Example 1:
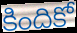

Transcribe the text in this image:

కిందికో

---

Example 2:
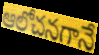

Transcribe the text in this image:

ఆలోచనగానే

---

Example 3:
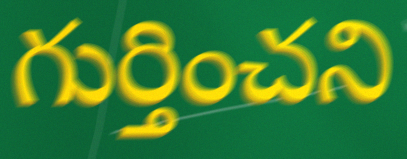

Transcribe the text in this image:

గుర్తించని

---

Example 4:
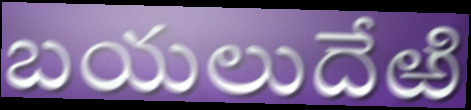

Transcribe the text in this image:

బయలుదేఱి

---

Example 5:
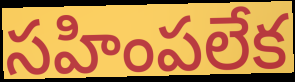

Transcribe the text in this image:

సహింపలేక